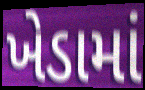
ખેડામાં